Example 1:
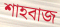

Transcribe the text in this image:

শাহবাজ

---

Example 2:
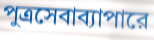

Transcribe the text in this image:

পুত্রসেবাব্যাপারে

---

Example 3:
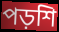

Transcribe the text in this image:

পড়শি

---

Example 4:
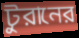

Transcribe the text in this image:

টুরানের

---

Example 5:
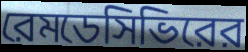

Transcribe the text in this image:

রেমডেসিভিরের